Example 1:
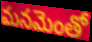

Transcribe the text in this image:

మనమెంతో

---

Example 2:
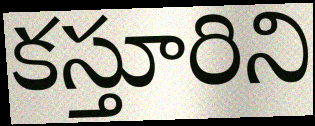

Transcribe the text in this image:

కస్తూరిని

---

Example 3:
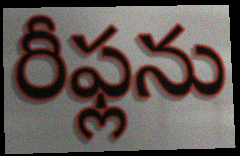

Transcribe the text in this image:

రీఫ్లను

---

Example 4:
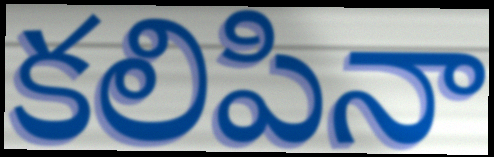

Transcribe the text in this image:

కలిపినా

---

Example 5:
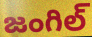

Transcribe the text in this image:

జంగిల్